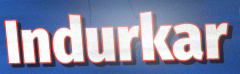
Indurkar